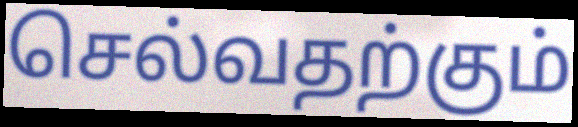
செல்வதற்கும்